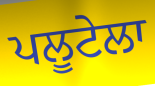
ਪਲੂਟੇਲਾ